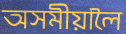
অসমীয়ালৈ